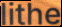
lithe